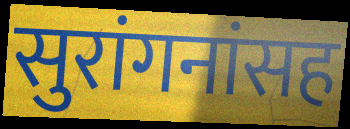
सुरांगनांसह